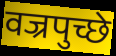
वज्रपुच्छे